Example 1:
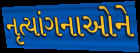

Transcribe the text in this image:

નૃત્યાંગનાઓને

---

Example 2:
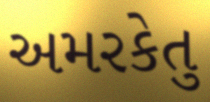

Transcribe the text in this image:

અમરકેતુ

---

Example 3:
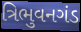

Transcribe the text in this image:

ત્રિભુવનગંડ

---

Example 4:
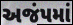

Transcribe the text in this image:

અજંપમાં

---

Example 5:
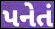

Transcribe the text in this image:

પનેતં